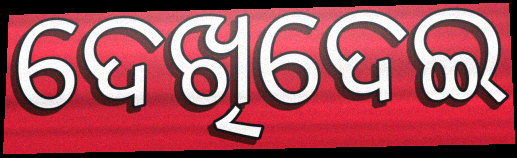
ଦେଖିଦେଇ